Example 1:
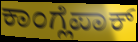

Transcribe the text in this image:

ಕಾಂಗ್ಲೆಪಾಕ್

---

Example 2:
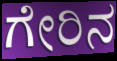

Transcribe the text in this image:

ಗೇರಿನ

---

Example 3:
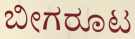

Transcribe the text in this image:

ಬೀಗರೂಟ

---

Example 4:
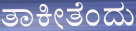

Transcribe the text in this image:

ತಾಕೀತೆಂದು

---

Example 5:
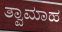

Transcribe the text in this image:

ತ್ವಾಮಾಹ